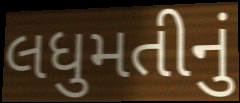
લધુમતીનું